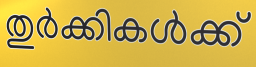
തുർക്കികൾക്ക്